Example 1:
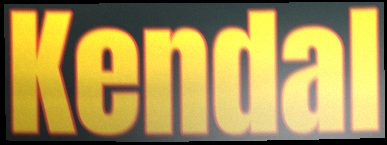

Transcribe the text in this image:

Kendal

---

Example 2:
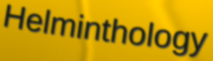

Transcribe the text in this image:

Helminthology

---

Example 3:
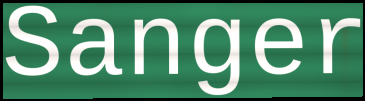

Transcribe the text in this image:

Sanger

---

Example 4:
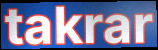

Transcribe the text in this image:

takrar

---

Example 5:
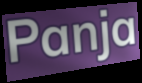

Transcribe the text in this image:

Panja